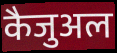
कैजुअल